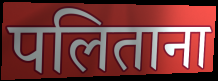
पलिताना